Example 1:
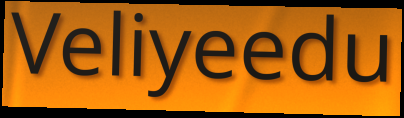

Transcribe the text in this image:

Veliyeedu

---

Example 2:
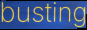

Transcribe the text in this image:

busting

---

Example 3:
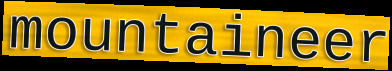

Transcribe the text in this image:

mountaineer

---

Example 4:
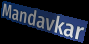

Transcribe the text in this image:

Mandavkar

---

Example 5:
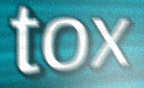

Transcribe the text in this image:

tox